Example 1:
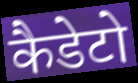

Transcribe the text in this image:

कैडेटो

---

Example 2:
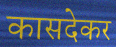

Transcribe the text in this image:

कासदेकर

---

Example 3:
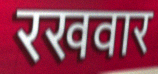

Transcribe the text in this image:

रखवार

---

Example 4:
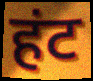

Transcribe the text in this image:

हंट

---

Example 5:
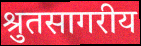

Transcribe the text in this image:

श्रुतसागरीय